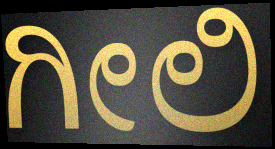
ಗೀಲಿ